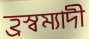
হ্ৰস্বম্যাদী